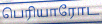
பெரியாரோட